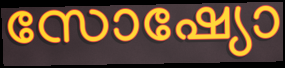
സോഷ്യോ